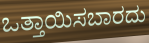
ಒತ್ತಾಯಿಸಬಾರದು